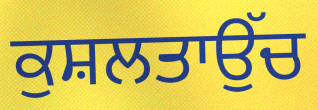
ਕੁਸ਼ਲਤਾਉੱਚ